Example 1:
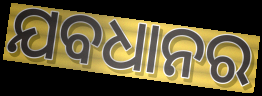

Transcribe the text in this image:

ଯବଧାନର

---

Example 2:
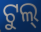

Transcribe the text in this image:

ଟୁଲ୍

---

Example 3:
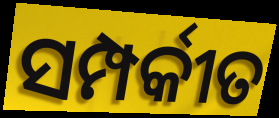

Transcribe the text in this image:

ସମ୍ପର୍କୀତ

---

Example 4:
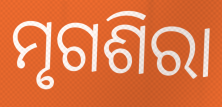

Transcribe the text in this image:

ମୃଗଶିରା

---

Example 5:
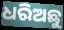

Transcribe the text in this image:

ଧରିଅଛୁ